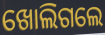
ଖୋଲିଗଲେ